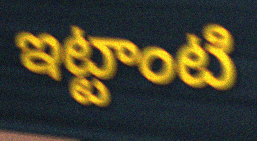
ఇట్టాంటి